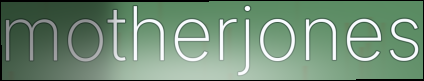
motherjones